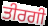
ਤੀਰਗੀ